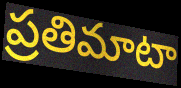
ప్రతిమాటా